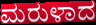
ಮರುಳಾದ